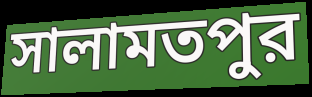
সালামতপুর